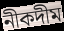
নীকদীম